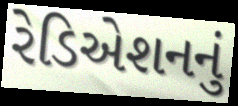
રેડિએશનનું